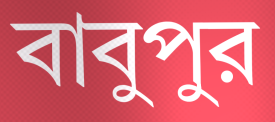
বাবুপুর